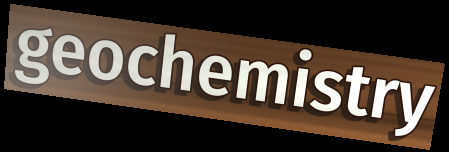
geochemistry